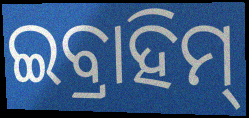
ଇବ୍ରାହିମ୍